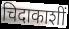
चिदाकाशीं